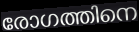
രോഗത്തിനെ